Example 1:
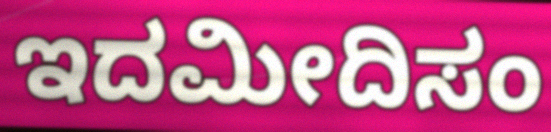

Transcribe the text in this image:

ಇದಮೀದಿಸಂ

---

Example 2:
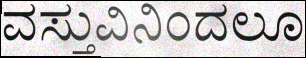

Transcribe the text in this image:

ವಸ್ತುವಿನಿಂದಲೂ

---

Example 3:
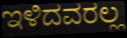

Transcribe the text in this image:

ಇಳಿದವರಲ್ಲ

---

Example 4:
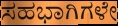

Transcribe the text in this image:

ಸಹಭಾಗಿಗಳೇ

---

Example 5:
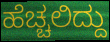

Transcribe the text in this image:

ಹೆಚ್ಚಲಿದ್ದು